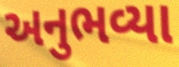
અનુભવ્યા